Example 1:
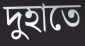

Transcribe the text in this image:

দুহাতে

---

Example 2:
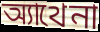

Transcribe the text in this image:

অ্যাথেনা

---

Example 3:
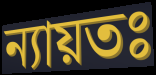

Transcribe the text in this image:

ন্যায়তঃ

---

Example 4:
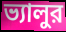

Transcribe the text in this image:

ভ্যালুর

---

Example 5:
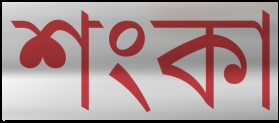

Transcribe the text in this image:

শংকা